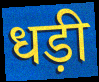
धड़ी